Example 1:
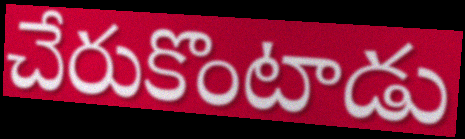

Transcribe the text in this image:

చేరుకొంటాడు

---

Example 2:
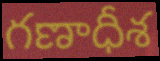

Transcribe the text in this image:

గణాధీశ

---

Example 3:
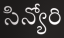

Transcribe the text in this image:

సిన్యోరి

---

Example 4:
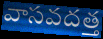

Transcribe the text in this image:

వాసవదత్త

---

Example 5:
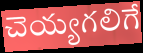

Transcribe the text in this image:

చెయ్యగలిగే